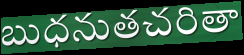
బుధనుతచరితా